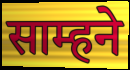
साम्हने